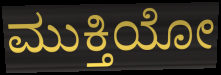
ಮುಕ್ತಿಯೋ